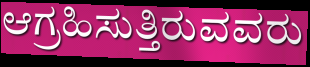
ಆಗ್ರಹಿಸುತ್ತಿರುವವರು